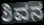
ಶಿವನ